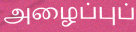
அழைப்புப்